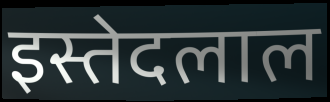
इस्तेदलाल